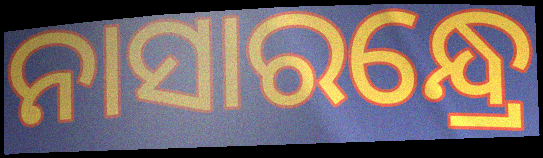
ନାସାରନ୍ଧ୍ରେ